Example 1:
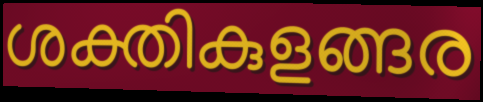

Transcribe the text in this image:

ശക്തികുളങ്ങര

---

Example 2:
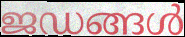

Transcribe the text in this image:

ജഡങ്ങൾ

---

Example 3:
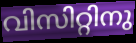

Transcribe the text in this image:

വിസിറ്റിനു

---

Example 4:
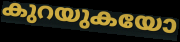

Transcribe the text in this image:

കുറയുകയോ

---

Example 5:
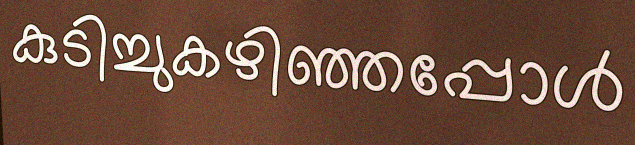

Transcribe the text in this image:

കുടിച്ചുകഴിഞ്ഞപ്പോൾ